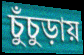
চুঁচুড়ায়